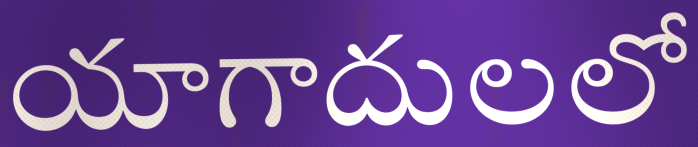
యాగాదులలో